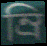
ম্রি